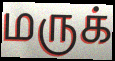
மருக்